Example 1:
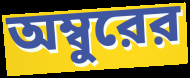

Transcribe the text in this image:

অম্বুরের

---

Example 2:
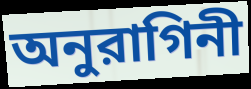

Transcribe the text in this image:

অনুরাগিনী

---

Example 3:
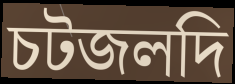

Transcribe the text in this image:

চটজলদি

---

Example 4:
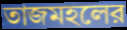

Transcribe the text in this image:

তাজমহলের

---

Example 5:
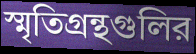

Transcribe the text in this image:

স্মৃতিগ্রন্থগুলির